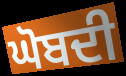
ਘੋਬਦੀ